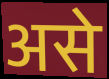
असे